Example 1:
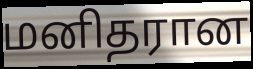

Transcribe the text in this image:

மனிதரான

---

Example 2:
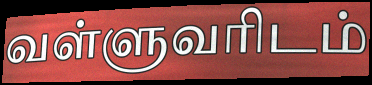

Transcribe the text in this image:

வள்ளுவரிடம்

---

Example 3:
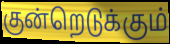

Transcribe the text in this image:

குன்றெடுக்கும்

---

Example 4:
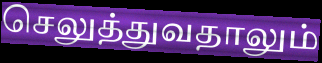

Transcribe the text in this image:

செலுத்துவதாலும்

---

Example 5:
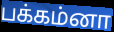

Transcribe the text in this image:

பக்கம்னா